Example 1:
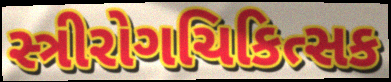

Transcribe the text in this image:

સ્ત્રીરોગચિકિત્સક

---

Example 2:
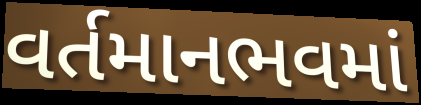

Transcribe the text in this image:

વર્તમાનભવમાં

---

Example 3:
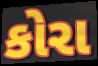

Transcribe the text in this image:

કોરા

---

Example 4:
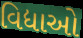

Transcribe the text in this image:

વિદ્યાઓ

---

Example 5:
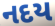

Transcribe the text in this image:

નદય